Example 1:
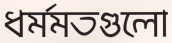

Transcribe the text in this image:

ধর্মমতগুলো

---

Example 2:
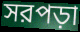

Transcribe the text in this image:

সরপড়া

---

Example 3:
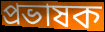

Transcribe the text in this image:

প্রভাষক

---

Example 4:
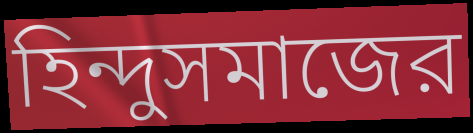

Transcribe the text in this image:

হিন্দুসমাজের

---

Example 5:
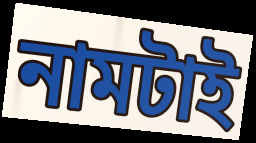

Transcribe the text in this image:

নামটাই